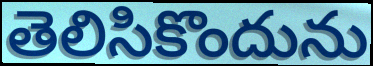
తెలిసికొందును